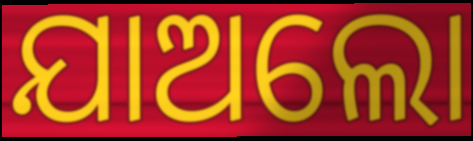
ଯାଅଲୋ